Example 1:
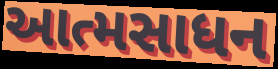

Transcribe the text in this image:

આત્મસાધન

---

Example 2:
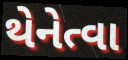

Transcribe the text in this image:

થેનેત્વા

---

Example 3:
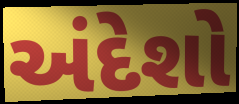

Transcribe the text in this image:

અંદેશો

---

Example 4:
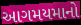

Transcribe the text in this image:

આગમયમાનો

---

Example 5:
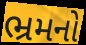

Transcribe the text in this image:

ભ્રમનો